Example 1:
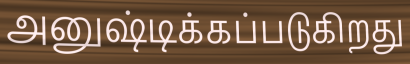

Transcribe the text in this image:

அனுஷ்டிக்கப்படுகிறது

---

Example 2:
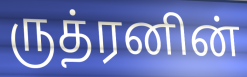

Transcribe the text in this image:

ருத்ரனின்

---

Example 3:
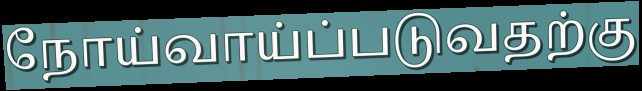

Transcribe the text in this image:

நோய்வாய்ப்படுவதற்கு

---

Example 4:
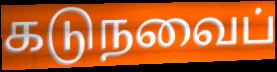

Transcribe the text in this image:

கடுநவைப்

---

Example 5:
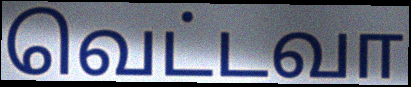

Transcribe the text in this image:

வெட்டவா